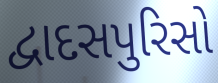
દ્વાદસપુરિસો